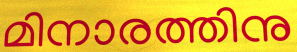
മിനാരത്തിനു